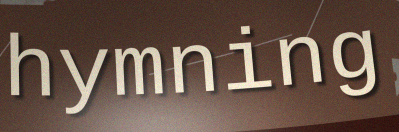
hymning